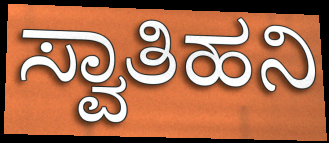
ಸ್ವಾತಿಹನಿ